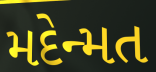
મદેન્મત